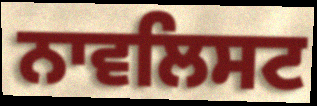
ਨਾਵਲਿਸਟ